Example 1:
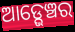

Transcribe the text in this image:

ଆଡ୍ଭେଞ୍ଚର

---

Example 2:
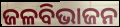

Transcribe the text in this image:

ଜଳବିଭାଜନ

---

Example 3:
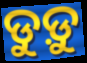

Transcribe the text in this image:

ଡୁଡ଼ୁ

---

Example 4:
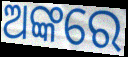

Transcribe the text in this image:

ଅଙ୍କରେ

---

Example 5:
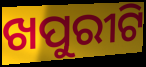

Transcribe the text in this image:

ଖପୁରୀଟି